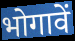
भोगावें